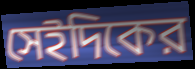
সেইদিকের